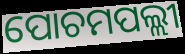
ପୋଚମପଲ୍ଲୀ